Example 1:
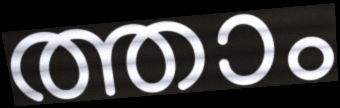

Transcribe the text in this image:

ത്താം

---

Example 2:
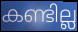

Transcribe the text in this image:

കണ്ടില്ല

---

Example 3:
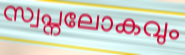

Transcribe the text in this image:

സ്വപ്നലോകവും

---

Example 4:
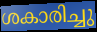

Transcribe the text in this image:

ശകാരിച്ചു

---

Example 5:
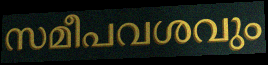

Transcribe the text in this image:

സമീപവശവും